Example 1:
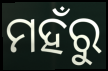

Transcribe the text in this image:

ମହଁରୁ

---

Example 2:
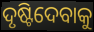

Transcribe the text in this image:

ଦୃଷ୍ଟିଦେବାକୁ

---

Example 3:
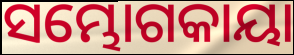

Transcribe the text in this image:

ସମ୍ଭୋଗକାୟା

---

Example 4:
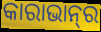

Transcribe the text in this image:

କାରାଭାନ୍‍ର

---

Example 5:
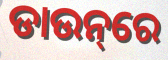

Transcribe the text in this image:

ଡାଉନ୍‌ରେ